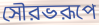
সৌরভরূপে